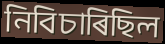
নিবিচাৰিছিল